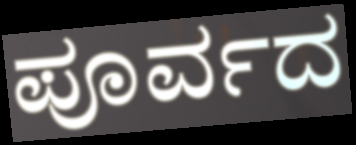
ಪೂರ್ವದ